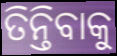
ତିନ୍ତିବାକୁ